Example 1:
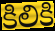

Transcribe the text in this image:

కిలికి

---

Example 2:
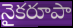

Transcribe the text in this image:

నైకరూపా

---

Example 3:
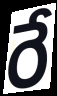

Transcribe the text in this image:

రే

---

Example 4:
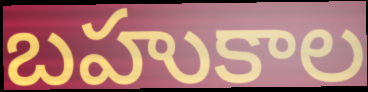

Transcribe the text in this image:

బహుకాల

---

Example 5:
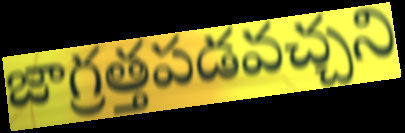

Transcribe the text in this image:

జాగ్రత్తపడవచ్చని